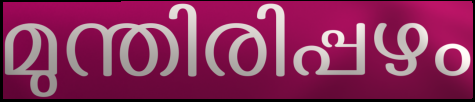
മുന്തിരിപ്പഴം